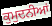
ਕੁਮੁਦਨੀਆਂ